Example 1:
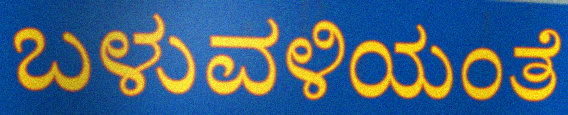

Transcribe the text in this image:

ಬಳುವಳಿಯಂತೆ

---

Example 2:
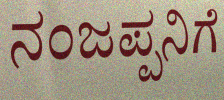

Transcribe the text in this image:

ನಂಜಪ್ಪನಿಗೆ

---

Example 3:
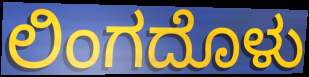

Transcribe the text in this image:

ಲಿಂಗದೊಳು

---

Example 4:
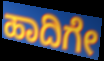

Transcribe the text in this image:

ಹಾದಿಗೇ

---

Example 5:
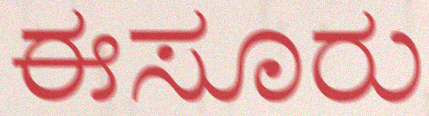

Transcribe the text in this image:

ಈಸೂರು